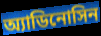
অ্যাডিনোসিন